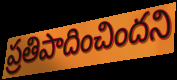
ప్రతిపాదించిందని